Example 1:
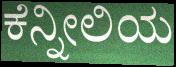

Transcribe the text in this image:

ಕೆನ್ನೀಲಿಯ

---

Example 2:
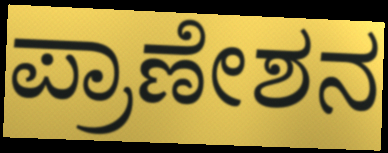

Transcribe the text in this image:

ಪ್ರಾಣೇಶನ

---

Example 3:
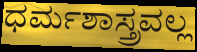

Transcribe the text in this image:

ಧರ್ಮಶಾಸ್ತ್ರವಲ್ಲ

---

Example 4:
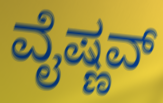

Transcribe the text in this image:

ವೈಷ್ಣವ್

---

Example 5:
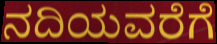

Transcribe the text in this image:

ನದಿಯವರೆಗೆ